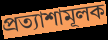
প্রত্যাশামূলক